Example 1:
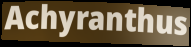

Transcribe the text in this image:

Achyranthus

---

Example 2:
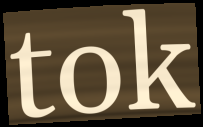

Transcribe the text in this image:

tok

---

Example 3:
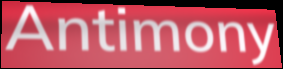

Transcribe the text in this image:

Antimony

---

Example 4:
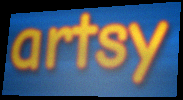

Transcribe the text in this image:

artsy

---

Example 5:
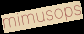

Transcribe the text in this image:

mimusops